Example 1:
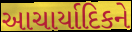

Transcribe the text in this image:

આચાર્યાદિકને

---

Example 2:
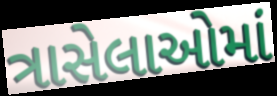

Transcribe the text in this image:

ત્રાસેલાઓમાં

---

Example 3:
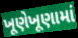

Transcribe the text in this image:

ખૂણેખૂણામાં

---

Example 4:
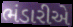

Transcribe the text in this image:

ભંડારીએ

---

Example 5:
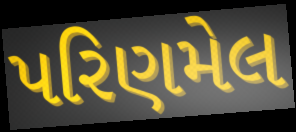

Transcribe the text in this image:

પરિણમેલ